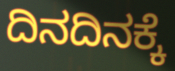
ದಿನದಿನಕ್ಕೆ